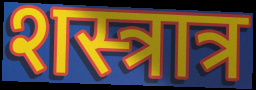
शस्त्रात्र